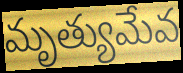
మృత్యుమేవ